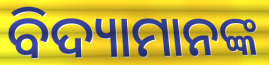
ବିଦ୍ୟାମାନଙ୍କ